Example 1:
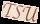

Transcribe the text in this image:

TSU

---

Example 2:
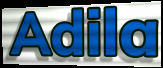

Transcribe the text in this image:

Adila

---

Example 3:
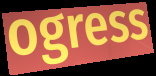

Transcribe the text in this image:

ogress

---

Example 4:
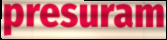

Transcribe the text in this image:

presuram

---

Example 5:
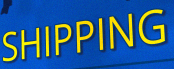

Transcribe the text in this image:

SHIPPING